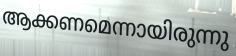
ആക്കണമെന്നായിരുന്നു